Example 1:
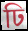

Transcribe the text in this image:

ঢি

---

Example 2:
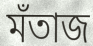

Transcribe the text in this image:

মঁতাজ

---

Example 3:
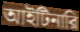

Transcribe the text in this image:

আইটিনারি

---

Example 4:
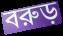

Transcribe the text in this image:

বরুড়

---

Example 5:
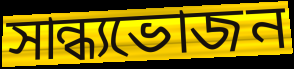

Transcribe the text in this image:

সান্ধ্যভোজন